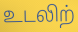
உடலிற்